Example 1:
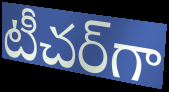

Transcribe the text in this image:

టీచర్‌గా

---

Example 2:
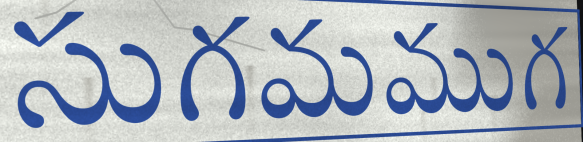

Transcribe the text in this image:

సుగమముగ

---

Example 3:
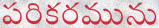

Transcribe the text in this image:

పరికరమును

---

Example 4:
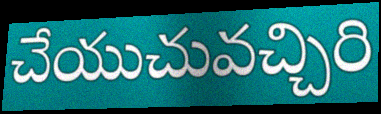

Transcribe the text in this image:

చేయుచువచ్చిరి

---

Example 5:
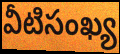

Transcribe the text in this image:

వీటిసంఖ్య